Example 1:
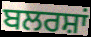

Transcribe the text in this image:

ਬਲਰਸ਼ਾਂ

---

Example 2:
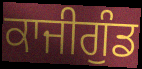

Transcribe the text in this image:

ਕਾਜੀਗੁੰਡ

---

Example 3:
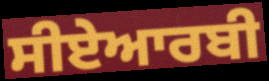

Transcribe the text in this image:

ਸੀਏਆਰਬੀ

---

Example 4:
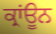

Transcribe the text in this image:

ਕ੍ਰਾਂਊਨ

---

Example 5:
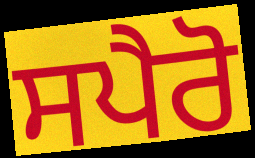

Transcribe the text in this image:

ਸਪੈਰੋ